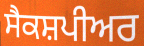
ਸੈਕਸ਼ਪੀਅਰ